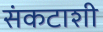
संकटाशी